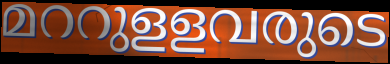
മററുളളവരുടെ